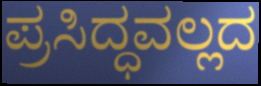
ಪ್ರಸಿದ್ಧವಲ್ಲದ